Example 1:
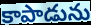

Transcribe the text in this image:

కాపాడును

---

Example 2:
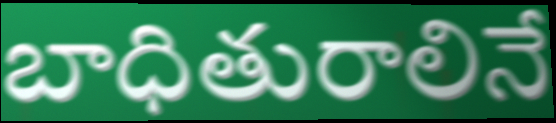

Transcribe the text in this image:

బాధితురాలినే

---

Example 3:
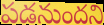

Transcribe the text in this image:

పడనుందని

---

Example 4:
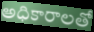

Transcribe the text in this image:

అధికారాలతో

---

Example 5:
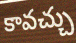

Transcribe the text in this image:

కావచ్చు